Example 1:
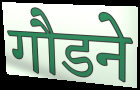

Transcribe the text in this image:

गौडने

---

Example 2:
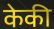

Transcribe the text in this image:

केकी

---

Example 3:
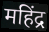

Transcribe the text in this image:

महिंद्र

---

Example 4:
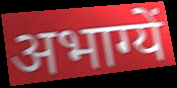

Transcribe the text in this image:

अभाग्यें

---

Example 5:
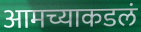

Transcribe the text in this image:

आमच्याकडलं